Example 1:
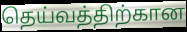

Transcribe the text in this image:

தெய்வத்திற்கான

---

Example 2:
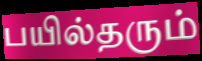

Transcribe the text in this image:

பயில்தரும்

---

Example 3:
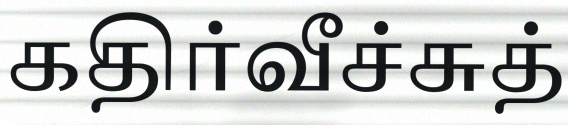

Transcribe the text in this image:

கதிர்வீச்சுத்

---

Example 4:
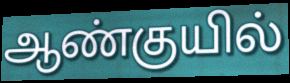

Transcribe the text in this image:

ஆண்குயில்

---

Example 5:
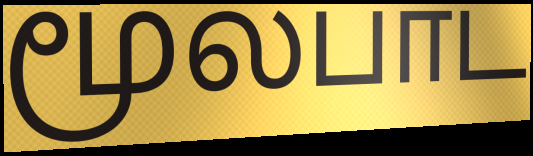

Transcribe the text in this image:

மூலபாட